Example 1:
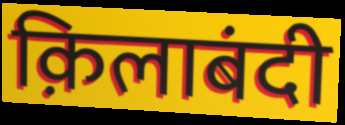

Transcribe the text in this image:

क़िलाबंदी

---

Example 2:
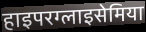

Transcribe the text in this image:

हाइपरग्लाइसेमिया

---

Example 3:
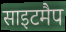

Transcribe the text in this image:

साइटमैप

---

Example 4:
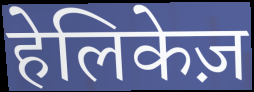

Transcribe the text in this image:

हेलिकेज़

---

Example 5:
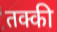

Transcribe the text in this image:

तक्की